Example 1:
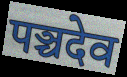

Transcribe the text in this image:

पञ्चदेव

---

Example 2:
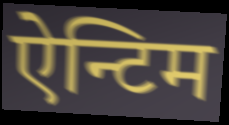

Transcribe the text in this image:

ऐन्टिम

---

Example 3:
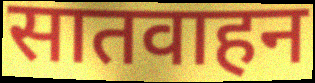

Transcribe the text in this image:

सातवाहन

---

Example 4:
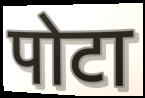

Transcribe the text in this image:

पोटा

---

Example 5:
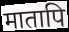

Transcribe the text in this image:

मातापि